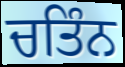
ਚਤਿੰਨ